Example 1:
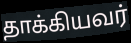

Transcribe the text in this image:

தாக்கியவர்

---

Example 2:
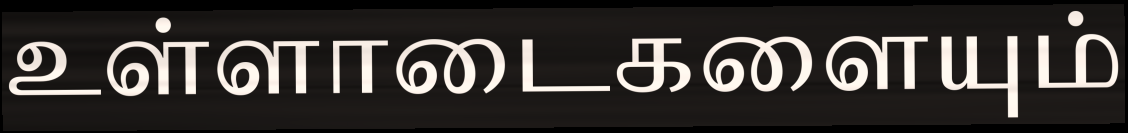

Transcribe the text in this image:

உள்ளாடைகளையும்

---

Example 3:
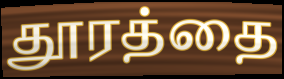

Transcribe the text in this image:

தூரத்தை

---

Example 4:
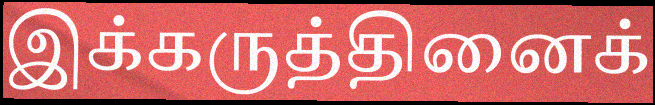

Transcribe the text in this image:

இக்கருத்தினைக்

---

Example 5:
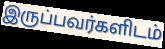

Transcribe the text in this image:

இருப்பவர்களிடம்